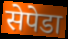
सेपेडा